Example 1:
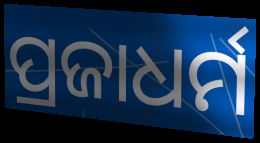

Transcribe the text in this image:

ପ୍ରଜାଧର୍ମ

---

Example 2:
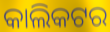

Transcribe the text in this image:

କାଲିକଟର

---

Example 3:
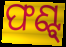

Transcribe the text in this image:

ଫଣ୍ଟ୍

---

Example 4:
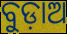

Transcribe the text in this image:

ବୁଡ଼ାଅ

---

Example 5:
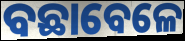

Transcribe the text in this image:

ବଛାବେଳେ